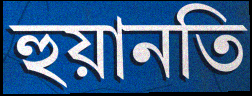
হুয়ানতি